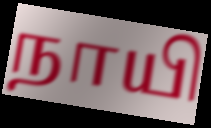
நாயி